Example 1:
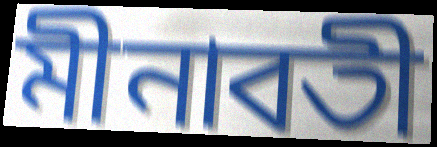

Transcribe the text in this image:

মীনাবতী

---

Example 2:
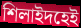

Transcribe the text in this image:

শিলাইদহেই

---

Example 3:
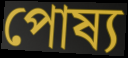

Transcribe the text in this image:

পোষ্য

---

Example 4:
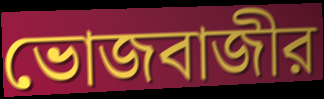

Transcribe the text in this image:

ভোজবাজীর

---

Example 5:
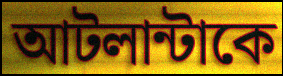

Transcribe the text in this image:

আটলান্টাকে